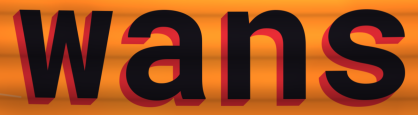
wans